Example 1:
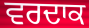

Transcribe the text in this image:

ਵਰਦਾਕ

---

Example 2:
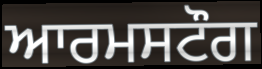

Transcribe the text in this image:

ਆਰਮਸਟੌਗ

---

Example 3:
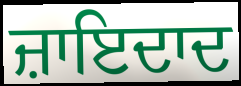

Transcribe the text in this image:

ਜ਼ਾਇਦਾਦ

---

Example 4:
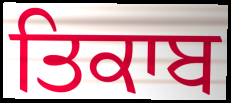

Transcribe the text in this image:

ਤਿਕਾਬ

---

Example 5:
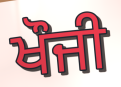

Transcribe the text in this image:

ਖੌਜੀ